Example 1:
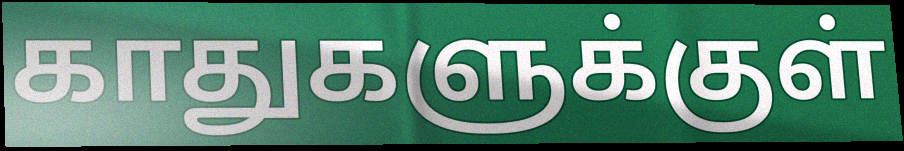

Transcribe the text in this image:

காதுகளுக்குள்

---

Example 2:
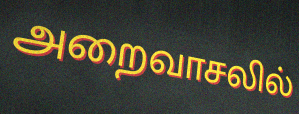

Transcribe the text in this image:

அறைவாசலில்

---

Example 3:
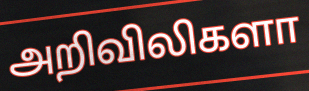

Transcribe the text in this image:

அறிவிலிகளா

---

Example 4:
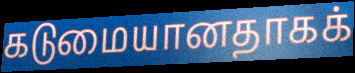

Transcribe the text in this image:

கடுமையானதாகக்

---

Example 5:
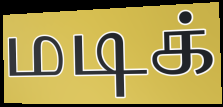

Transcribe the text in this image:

மடிக்